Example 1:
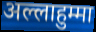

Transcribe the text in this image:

अल्लाहुम्मा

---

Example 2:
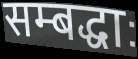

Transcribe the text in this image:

सम्बद्धाः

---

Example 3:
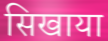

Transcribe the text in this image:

सिखाया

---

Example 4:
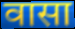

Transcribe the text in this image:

वासा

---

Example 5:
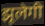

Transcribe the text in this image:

झूलेगी